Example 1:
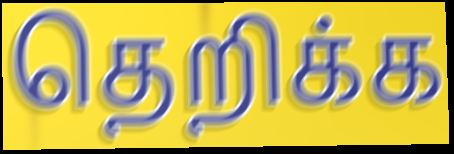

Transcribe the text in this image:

தெறிக்க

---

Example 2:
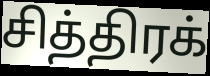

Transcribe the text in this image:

சித்திரக்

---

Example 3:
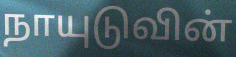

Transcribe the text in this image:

நாயுடுவின்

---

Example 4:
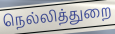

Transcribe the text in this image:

நெல்லித்துறை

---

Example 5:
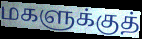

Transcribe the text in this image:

மகளுக்குத்